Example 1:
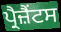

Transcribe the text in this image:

ਪ੍ਰੈਜ਼ੈਂਟਸ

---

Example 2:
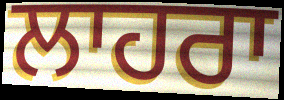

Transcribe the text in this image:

ਲਾਹਰਾ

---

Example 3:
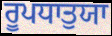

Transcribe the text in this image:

ਰੂਪਧਾਤੁਯਾ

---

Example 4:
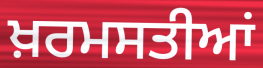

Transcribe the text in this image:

ਖ਼ਰਮਸਤੀਆਂ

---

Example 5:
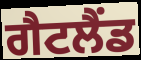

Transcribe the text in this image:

ਗੈਟਲੈਂਡ